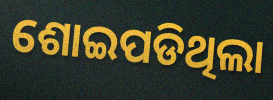
ଶୋଇପଡିଥିଲା